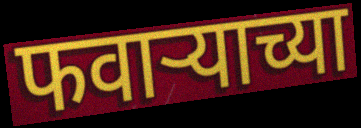
फवाऱ्याच्या